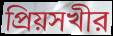
প্রিয়সখীর